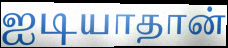
ஐடியாதான்